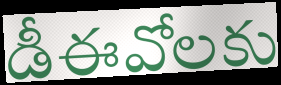
డీఈవోలకు